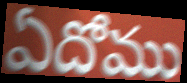
ఏదోము